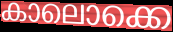
കാലൊക്കെ